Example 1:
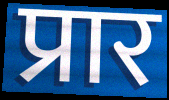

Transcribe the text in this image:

प्रार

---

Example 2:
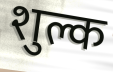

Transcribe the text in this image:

शुल्‍क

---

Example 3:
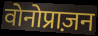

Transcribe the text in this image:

वोनोप्राज़न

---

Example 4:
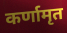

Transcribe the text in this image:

कर्णामृत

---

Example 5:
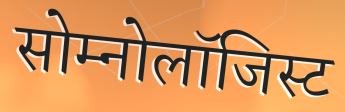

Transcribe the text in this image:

सोम्नोलॉजिस्ट